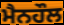
ਮੈਨਹੌਲ